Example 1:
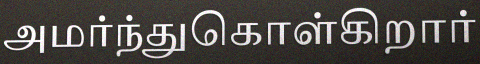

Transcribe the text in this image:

அமர்ந்துகொள்கிறார்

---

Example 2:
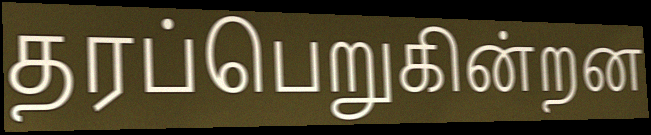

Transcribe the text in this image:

தரப்பெறுகின்றன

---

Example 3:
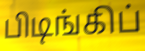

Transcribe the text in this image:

பிடிங்கிப்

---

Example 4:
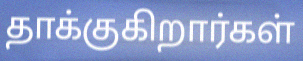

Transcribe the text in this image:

தாக்குகிறார்கள்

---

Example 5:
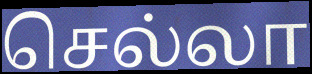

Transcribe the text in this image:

செல்லா